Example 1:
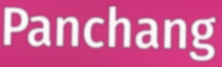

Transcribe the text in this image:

Panchang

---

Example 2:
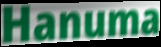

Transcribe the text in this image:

Hanuma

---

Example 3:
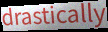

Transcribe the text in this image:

drastically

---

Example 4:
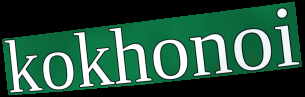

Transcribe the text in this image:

kokhonoi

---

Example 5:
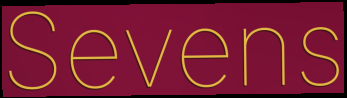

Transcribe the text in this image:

Sevens